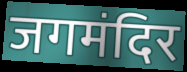
जगमंदिर